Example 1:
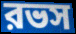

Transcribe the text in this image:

রভস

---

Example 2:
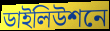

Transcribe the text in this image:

ডাইলিউশনে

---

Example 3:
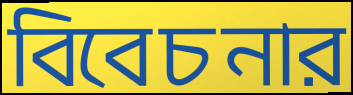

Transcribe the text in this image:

বিবেচনার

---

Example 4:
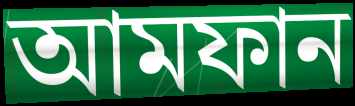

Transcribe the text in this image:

আমফান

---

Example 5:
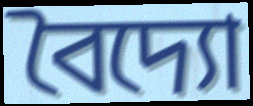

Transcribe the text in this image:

বৈদ্যো